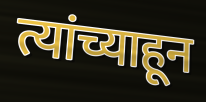
त्यांच्याहून